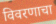
विवरणाचा